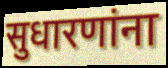
सुधारणांना